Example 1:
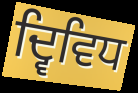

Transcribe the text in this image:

ਦ੍ਵਿਵਿਧ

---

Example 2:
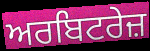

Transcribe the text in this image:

ਅਰਬਿਟਰੇਜ਼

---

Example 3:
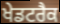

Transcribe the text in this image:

ਖੇਡਟਰੈਕ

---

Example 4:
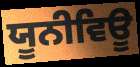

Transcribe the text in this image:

ਯੂਨੀਵਿਊ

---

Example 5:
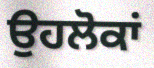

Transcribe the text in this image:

ਉਹਲੋਕਾਂ